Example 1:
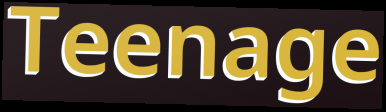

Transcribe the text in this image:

Teenage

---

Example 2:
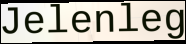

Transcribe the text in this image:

Jelenleg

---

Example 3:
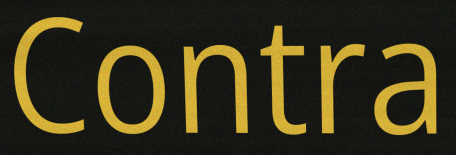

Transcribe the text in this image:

Contra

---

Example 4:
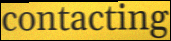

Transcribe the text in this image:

contacting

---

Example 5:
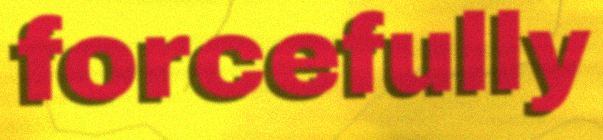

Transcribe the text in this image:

forcefully